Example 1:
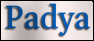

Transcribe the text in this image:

Padya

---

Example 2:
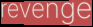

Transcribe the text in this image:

revenge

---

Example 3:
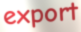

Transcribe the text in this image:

export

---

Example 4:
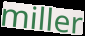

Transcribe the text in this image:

miller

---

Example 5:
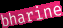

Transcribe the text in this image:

bharine